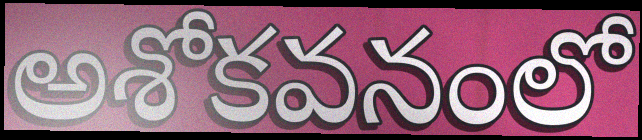
అశోకవనంలో